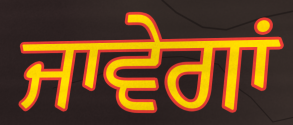
ਜਾਵੇਗਾਂ